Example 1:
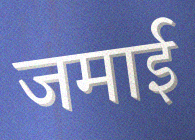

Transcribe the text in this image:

जमाई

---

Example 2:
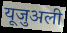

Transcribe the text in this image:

यूजुअली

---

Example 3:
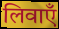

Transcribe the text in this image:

लिवाएँ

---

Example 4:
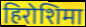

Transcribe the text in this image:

हिरोशिमा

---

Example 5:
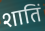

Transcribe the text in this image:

शातिं